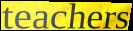
teachers